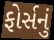
ફોર્સનું